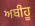
ਅਬੀਹੂ